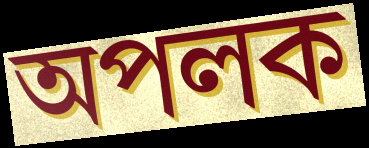
অপলক